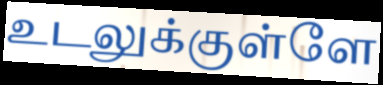
உடலுக்குள்ளே